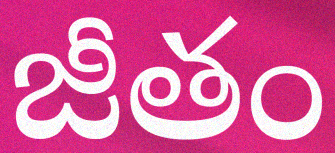
జీతం